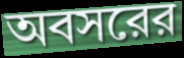
অবসরের